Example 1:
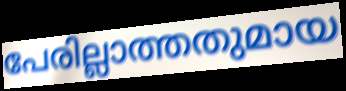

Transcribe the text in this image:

പേരില്ലാത്തതുമായ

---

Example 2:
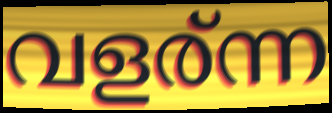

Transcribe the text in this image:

വളര്ന്ന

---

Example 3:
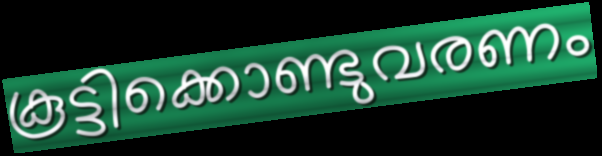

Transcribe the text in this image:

കൂട്ടിക്കൊണ്ടുവരണം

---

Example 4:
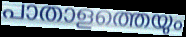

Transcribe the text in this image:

പാതാളത്തെയും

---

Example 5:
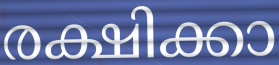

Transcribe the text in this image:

രക്ഷിക്കാ